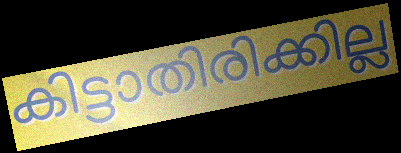
കിട്ടാതിരിക്കില്ല